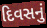
દિવસનું